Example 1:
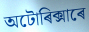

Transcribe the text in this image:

অটোৰিক্সাৰে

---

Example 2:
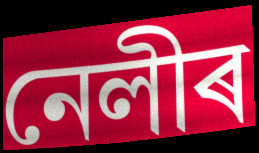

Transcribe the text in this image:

নেলীৰ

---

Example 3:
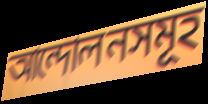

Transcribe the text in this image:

আন্দোলনসমূহ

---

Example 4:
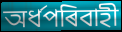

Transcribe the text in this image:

অৰ্ধপৰিবাহী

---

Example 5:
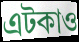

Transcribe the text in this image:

এটকাও